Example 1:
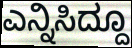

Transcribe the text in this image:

ಎನ್ನಿಸಿದ್ದೂ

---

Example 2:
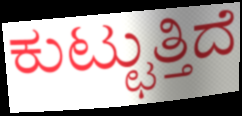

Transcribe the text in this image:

ಕುಟ್ಟುತ್ತಿದೆ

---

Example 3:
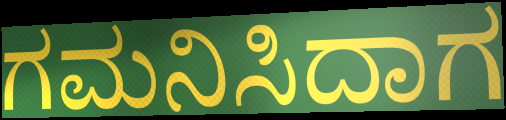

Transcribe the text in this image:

ಗಮನಿಸಿದಾಗ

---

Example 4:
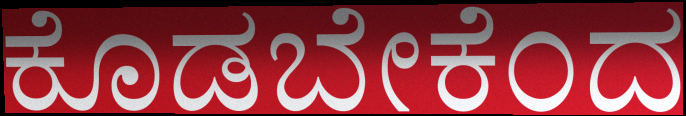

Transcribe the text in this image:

ಕೊಡಬೇಕೆಂದ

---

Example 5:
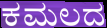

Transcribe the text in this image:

ಕಮಲದ